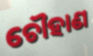
ଚୌହାଣ